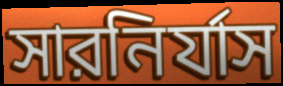
সারনির্যাস